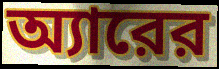
অ্যারের